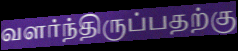
வளர்ந்திருப்பதற்கு